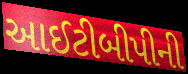
આઈટીબીપીની